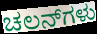
ಚಲನ್‌ಗಳು